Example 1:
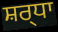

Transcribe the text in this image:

ਸ਼ਰ੍ਧਾ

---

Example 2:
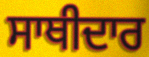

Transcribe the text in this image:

ਸਾਥੀਦਾਰ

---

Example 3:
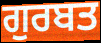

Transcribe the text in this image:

ਗੁਰਬਤ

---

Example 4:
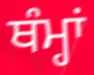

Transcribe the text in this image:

ਥੰਮ੍ਹਾਂ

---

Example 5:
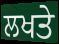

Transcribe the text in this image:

ਲਖਤੇ